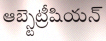
ఆబ్స్టెట్రీషియన్